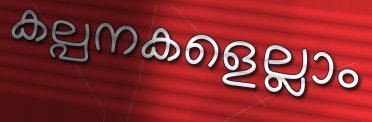
കല്പനകളെല്ലാം